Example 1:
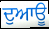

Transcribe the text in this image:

ਦੁਆਊ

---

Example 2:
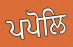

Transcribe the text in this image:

ਪਪੋਲਿ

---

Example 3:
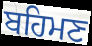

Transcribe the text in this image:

ਬਹਿਮਣ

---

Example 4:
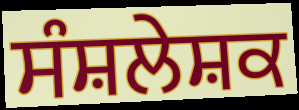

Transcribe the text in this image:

ਸੰਸ਼ਲੇਸ਼ਕ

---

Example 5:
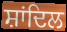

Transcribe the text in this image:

ਸ਼ਾਂਦਿਲ